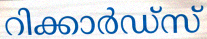
റിക്കാർഡ്സ്